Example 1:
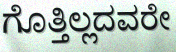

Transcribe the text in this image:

ಗೊತ್ತಿಲ್ಲದವರೇ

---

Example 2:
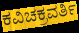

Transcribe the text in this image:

ಕವಿಚಕ್ರವರ್ತಿ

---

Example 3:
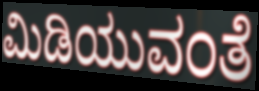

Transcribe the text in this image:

ಮಿಡಿಯುವಂತೆ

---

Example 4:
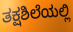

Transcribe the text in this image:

ತಕ್ಷಶಿಲೆಯಲ್ಲಿ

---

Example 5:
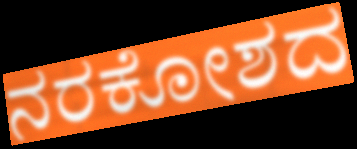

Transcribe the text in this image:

ನರಕೋಶದ